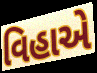
વિહાએ